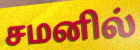
சமனில்